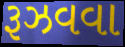
રૂઝવવા